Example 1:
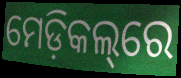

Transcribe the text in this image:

ମେଡ଼ିକଲ୍‌ରେ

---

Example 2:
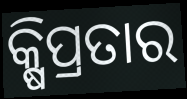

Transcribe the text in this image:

କ୍ଷିପ୍ରତାର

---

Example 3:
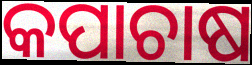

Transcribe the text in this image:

କପାଚାଷ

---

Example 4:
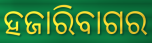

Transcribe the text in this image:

ହଜାରିବାଗର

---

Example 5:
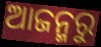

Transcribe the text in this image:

ଆଜନ୍ମରୁ